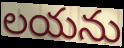
లయను